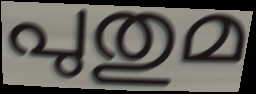
പുതുമ